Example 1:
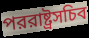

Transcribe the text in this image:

পররাষ্ট্রসচিব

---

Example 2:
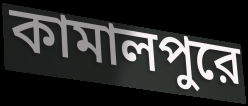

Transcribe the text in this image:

কামালপুরে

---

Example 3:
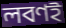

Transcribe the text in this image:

লবণই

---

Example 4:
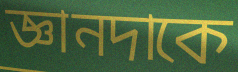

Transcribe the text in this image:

জ্ঞানদাকে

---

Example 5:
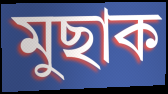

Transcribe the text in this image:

মুছাক